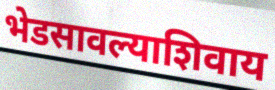
भेडसावल्याशिवाय